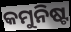
କମୁନିଷ୍ଟ